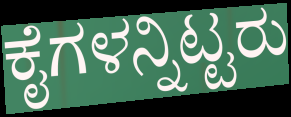
ಕೈಗಳನ್ನಿಟ್ಟರು